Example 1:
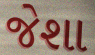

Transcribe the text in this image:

જેશા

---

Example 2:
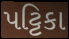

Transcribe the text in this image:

પટ્ટિકા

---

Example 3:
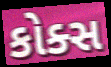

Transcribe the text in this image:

કોક્સ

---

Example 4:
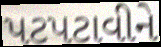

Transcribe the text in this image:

પટપટાવીને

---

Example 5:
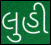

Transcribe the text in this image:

લુહી